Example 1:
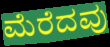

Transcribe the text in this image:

ಮೆರೆದವು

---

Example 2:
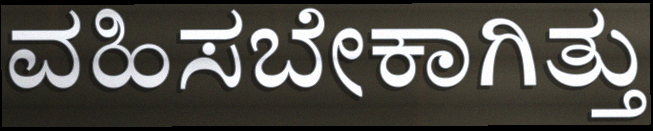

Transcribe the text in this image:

ವಹಿಸಬೇಕಾಗಿತ್ತು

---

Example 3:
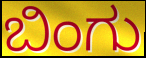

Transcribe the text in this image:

ಬಿಂಗು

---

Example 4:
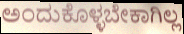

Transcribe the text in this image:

ಅಂದುಕೊಳ್ಳಬೇಕಾಗಿಲ್ಲ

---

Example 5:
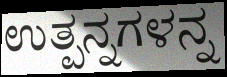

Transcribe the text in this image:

ಉತ್ಪನ್ನಗಳನ್ನ